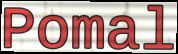
Pomal